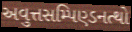
અવુત્તસમ્પિણ્ડનત્થો